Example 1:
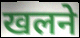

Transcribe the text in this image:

खलने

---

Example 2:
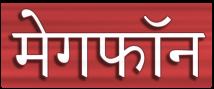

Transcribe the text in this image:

मेगफॉन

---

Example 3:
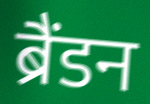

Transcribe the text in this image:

ब्रैंडन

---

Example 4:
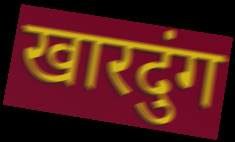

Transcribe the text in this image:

खारदुंग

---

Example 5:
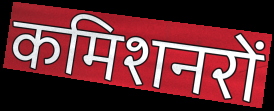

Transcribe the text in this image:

कमिशनरों